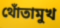
থোঁতামুখ